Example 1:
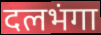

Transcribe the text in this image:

दलभंगा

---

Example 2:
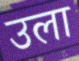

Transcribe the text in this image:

उला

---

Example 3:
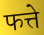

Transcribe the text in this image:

फत्ते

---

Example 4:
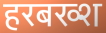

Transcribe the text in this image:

हरबख्श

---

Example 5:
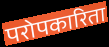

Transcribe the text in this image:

परोपकारिता